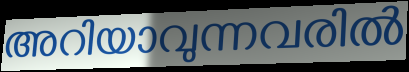
അറിയാവുന്നവരിൽ